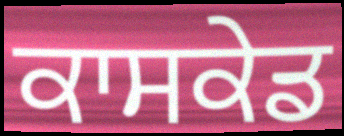
ਕਾਸਕੇਡ